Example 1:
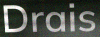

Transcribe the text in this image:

Drais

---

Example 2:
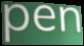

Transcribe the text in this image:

pen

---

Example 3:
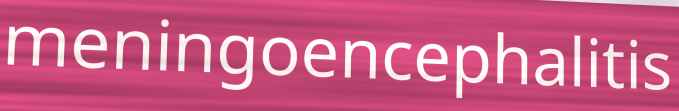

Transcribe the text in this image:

meningoencephalitis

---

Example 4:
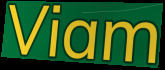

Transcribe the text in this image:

Viam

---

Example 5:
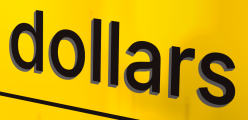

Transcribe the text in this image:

dollars